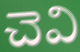
చెవి